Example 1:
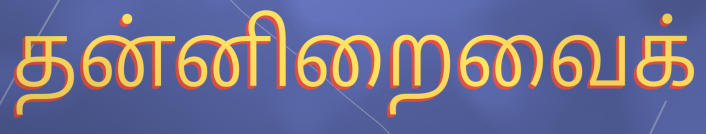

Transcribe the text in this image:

தன்னிறைவைக்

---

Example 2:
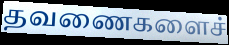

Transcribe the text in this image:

தவணைகளைச்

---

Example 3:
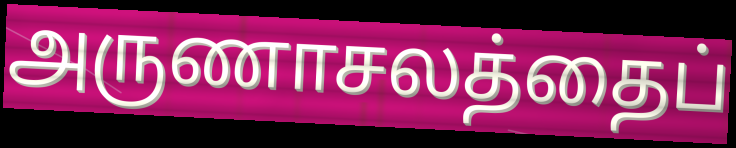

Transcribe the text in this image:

அருணாசலத்தைப்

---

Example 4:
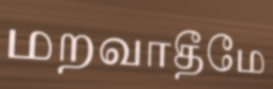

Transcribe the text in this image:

மறவாதீமே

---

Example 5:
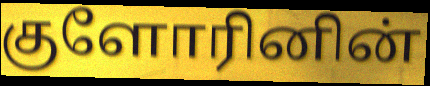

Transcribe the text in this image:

குளோரினின்